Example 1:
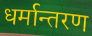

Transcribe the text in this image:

धर्मान्तरण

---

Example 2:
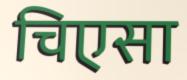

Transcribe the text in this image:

चिएसा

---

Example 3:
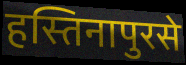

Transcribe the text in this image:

हस्तिनापुरसे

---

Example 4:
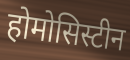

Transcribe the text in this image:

होमोसिस्टीन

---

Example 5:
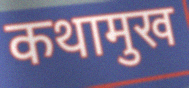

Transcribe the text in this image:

कथामुख